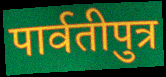
पार्वतीपुत्र